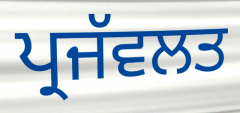
ਪ੍ਰਜੱਵਲਤ